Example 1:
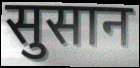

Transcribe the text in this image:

सुसान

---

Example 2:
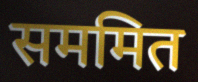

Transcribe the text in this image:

सममित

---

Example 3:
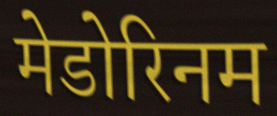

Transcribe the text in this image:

मेडोरिनम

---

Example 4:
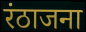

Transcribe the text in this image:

रंठाजना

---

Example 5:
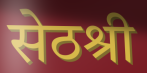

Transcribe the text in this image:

सेठश्री